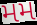
મમ